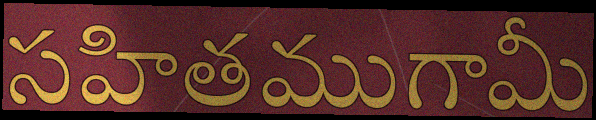
సహితముగామీ